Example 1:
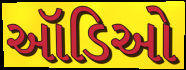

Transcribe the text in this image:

ઑડિઓ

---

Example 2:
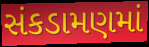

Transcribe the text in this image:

સંકડામણમાં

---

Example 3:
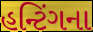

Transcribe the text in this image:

હન્ટિંગના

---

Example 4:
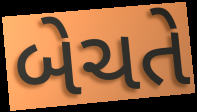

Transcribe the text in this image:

બેચતે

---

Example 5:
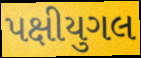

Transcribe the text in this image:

પક્ષીયુગલ